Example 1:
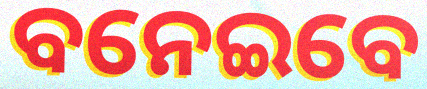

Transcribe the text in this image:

ବନେଇବେ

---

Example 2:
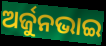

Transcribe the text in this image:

ଅର୍ଜୁନଭାଇ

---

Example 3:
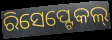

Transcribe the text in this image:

ରିସେପ୍ଟେକଲ୍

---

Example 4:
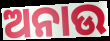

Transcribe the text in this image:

ଅନାଉ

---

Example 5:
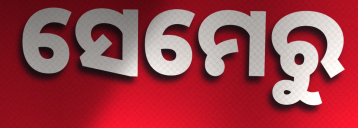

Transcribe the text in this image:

ସେମେରୁ